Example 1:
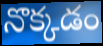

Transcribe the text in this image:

నొక్కడం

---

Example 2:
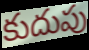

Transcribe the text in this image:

కుదుపు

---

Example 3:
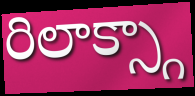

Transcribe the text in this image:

రిలాక్స్గా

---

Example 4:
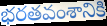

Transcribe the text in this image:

భరతవంశానికి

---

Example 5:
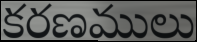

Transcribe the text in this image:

కరణములు